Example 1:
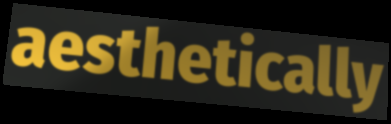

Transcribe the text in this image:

aesthetically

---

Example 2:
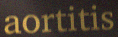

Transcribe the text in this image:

aortitis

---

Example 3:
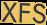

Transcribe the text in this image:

XFS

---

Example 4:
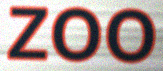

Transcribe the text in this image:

zoo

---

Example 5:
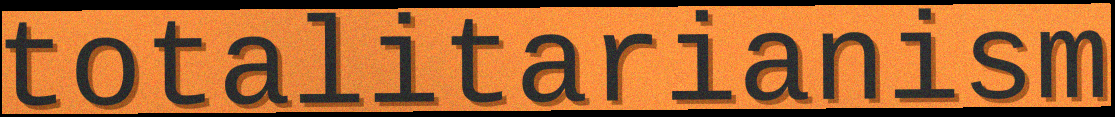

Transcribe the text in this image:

totalitarianism